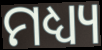
ମଧ୍ୟ୍ୟ